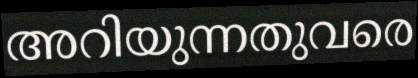
അറിയുന്നതുവരെ